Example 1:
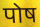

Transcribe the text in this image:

पोष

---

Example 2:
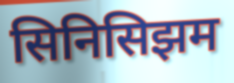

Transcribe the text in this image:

सिनिसिझम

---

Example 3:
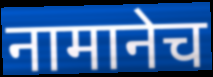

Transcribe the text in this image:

नामानेच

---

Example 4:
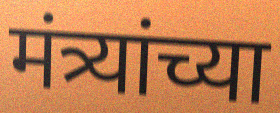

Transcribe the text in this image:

मंत्र्यांच्या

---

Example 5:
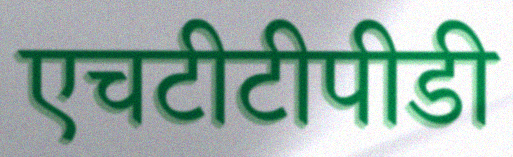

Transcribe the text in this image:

एचटीटीपीडी